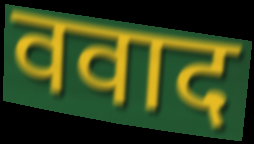
ववाद